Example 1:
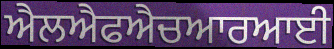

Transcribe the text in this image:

ਐਲਐਫਐਚਆਰਆਈ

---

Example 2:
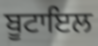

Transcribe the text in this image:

ਬੂਟਾਇਲ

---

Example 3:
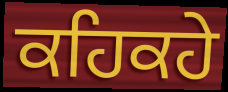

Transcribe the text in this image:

ਕਹਿਕਹੇ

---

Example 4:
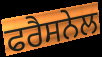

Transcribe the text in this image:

ਫਰੈਸਨੇਲ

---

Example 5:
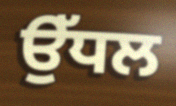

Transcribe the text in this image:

ਉੱਧਲ